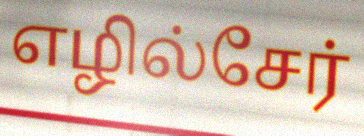
எழில்சேர்